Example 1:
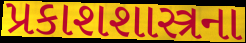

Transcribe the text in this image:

પ્રકાશશાસ્ત્રના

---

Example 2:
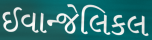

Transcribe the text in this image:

ઈવાન્જેલિકલ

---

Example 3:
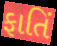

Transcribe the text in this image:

ફાતિં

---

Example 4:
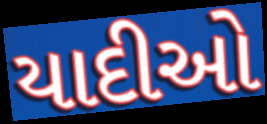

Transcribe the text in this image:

યાદીઓ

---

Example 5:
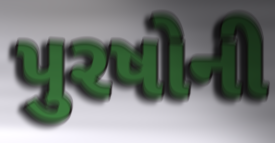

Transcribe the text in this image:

પુરષોની